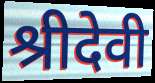
श्रीदेवी